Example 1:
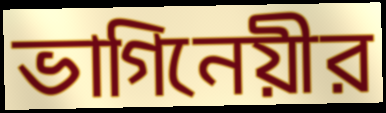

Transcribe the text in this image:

ভাগিনেয়ীর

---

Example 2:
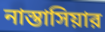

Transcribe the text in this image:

নাস্তাসিয়ার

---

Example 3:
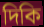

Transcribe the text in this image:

দিকি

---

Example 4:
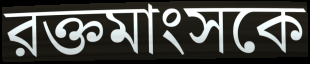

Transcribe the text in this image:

রক্তমাংসকে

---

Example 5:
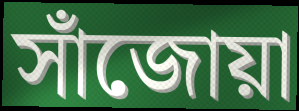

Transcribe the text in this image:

সাঁজোয়া